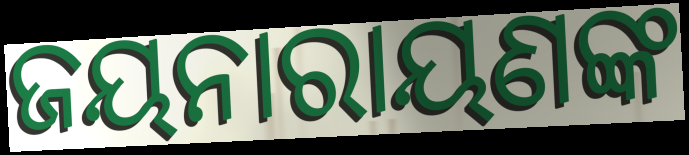
ଜୟନାରାୟଣଙ୍କ